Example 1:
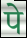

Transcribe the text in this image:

पे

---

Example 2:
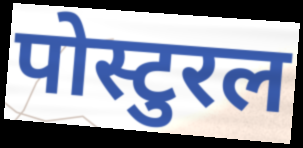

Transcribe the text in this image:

पोस्टुरल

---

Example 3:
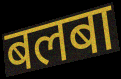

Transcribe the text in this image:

बलबा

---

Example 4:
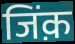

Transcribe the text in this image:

जिंक़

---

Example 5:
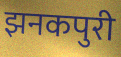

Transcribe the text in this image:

झनकपुरी